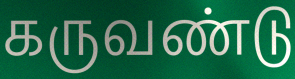
கருவண்டு